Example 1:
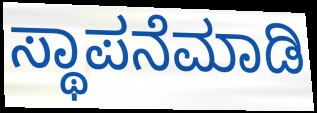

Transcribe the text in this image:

ಸ್ಥಾಪನೆಮಾಡಿ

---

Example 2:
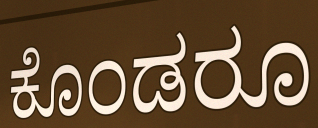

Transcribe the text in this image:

ಕೊಂಡರೂ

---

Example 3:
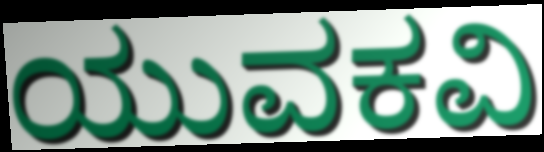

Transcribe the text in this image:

ಯುವಕವಿ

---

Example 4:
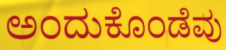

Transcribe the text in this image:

ಅಂದುಕೊಂಡೆವು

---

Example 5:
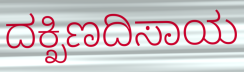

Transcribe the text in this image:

ದಕ್ಖಿಣದಿಸಾಯ